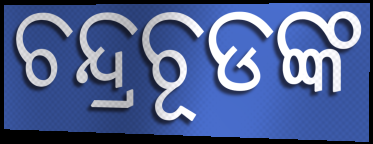
ଚନ୍ଦ୍ରଚୂଡଙ୍କ